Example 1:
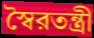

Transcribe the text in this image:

স্বৈরতন্ত্রী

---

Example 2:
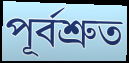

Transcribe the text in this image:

পূর্বশ্রুত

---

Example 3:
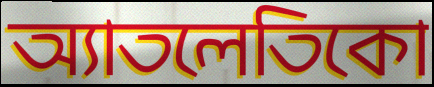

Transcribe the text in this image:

অ্যাতলেতিকো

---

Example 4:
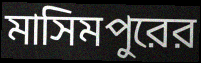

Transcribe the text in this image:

মাসিমপুরের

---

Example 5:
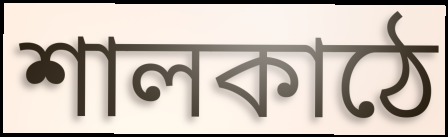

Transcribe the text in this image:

শালকাঠে